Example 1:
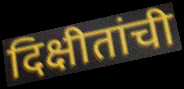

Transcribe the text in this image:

दिक्षीतांची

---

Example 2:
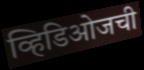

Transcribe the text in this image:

व्हिडिओजची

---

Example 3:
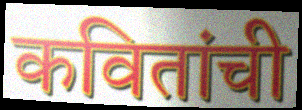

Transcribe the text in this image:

कवितांची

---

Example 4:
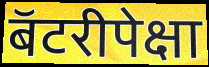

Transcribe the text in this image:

बॅटरीपेक्षा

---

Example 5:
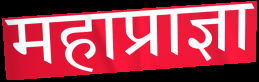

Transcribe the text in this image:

महाप्राज्ञा